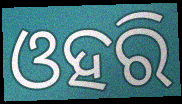
ଓହରି